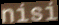
nisi